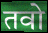
तवो